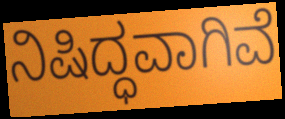
ನಿಷಿದ್ಧವಾಗಿವೆ